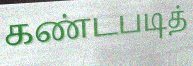
கண்டபடித்